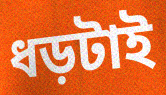
ধড়টাই